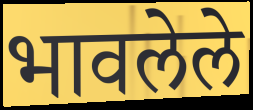
भावलेले